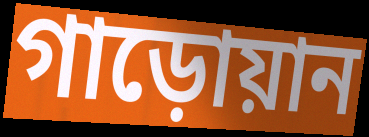
গাড়োয়ান